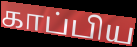
காப்பிய